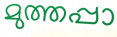
മുത്തപ്പാ